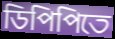
ডিপিপিতে